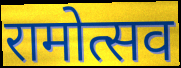
रामोत्सव